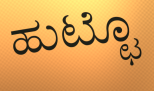
ಹುಟ್ಟೊ